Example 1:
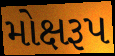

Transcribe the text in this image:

મોક્ષરૂપ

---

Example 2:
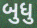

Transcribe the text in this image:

બુધુ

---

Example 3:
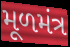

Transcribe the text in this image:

મૂળમંત્ર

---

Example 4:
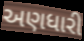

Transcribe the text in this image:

અણધારી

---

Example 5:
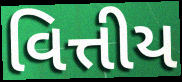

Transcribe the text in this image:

વિત્તીય